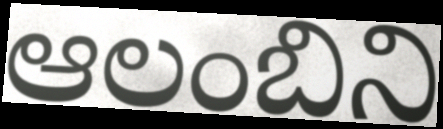
ఆలంబిని